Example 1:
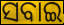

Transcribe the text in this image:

ସବାଇ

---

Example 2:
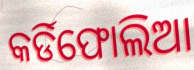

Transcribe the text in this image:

କର୍ଡିଫୋଲିଆ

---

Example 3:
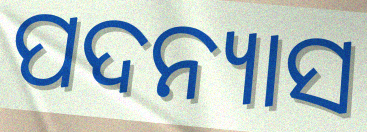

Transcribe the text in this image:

ପଦନ୍ୟାସ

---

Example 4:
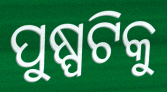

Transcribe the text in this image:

ପୁଷ୍ପଟିକୁ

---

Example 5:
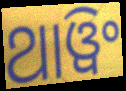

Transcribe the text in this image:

ଥାୱିଂ